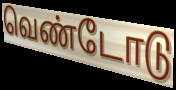
வெண்டோடு